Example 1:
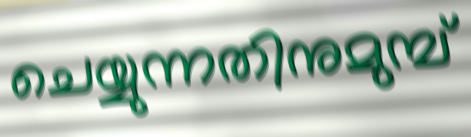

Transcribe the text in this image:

ചെയ്യുന്നതിനുമുമ്പ്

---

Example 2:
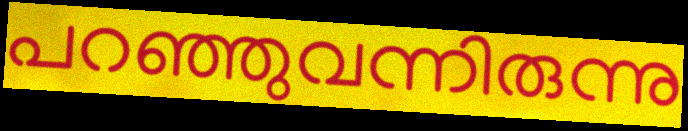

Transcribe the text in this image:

പറഞ്ഞുവന്നിരുന്നു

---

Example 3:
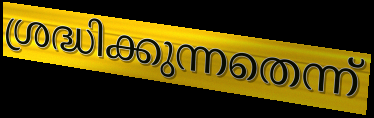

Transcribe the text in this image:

ശ്രദ്ധിക്കുന്നതെന്ന്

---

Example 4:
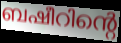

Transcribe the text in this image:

ബഷീറിന്റെ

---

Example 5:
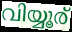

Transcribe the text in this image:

വിയ്യൂര്